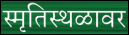
स्मृतिस्थळावर